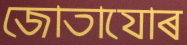
জোতাযোৰ